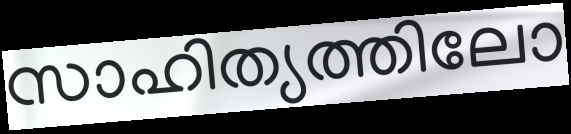
സാഹിത്യത്തിലോ